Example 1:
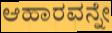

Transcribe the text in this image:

ಆಹಾರವನ್ನೇ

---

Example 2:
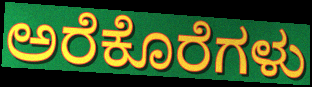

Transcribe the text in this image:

ಅರೆಕೊರೆಗಳು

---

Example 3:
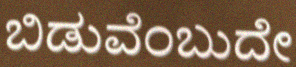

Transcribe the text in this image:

ಬಿಡುವೆಂಬುದೇ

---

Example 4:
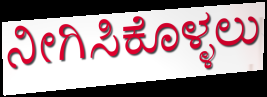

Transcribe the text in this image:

ನೀಗಿಸಿಕೊಳ್ಳಲು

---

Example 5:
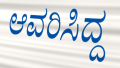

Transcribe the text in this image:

ಆವರಿಸಿದ್ದ